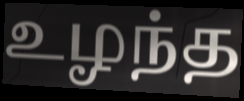
உழந்த